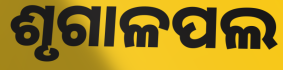
ଶୃଗାଳପଲ